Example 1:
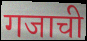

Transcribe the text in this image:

गजाची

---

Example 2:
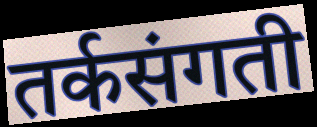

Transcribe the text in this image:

तर्कसंगती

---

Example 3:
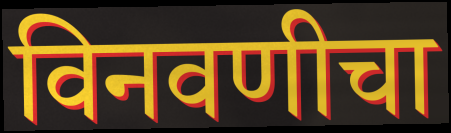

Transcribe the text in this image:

विनवणीचा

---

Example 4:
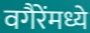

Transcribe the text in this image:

वगैरेंमध्ये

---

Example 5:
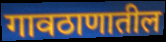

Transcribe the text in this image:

गावठाणातील